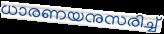
ധാരണയനുസരിച്ച്